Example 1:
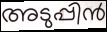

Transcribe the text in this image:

അടുപ്പിൻ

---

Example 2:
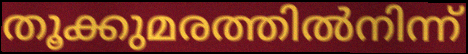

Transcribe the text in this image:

തൂക്കുമരത്തിൽനിന്ന്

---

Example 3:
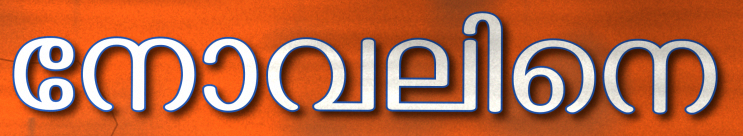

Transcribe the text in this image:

നോവലിനെ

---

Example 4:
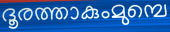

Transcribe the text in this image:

ദൂരത്താകുംമുമ്പെ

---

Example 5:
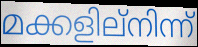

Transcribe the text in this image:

മക്കളില്നിന്ന്